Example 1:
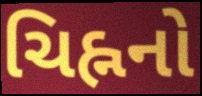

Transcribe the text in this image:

ચિહ્નનો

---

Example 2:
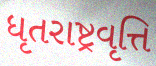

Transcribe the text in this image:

ધૃતરાષ્ટ્રવૃત્તિ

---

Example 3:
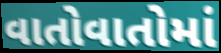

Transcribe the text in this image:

વાતોવાતોમાં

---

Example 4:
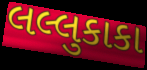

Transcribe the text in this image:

લલ્લુકાકા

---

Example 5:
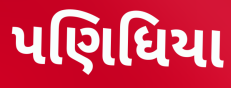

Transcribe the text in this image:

પણિધિયા